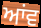
ਆਂਵ